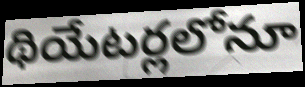
థియేటర్లలోనూ